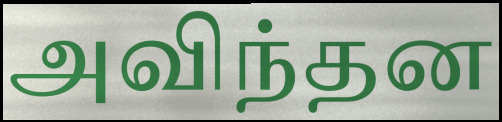
அவிந்தன